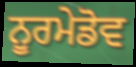
ਨੂਰਮੇਡੋਵ